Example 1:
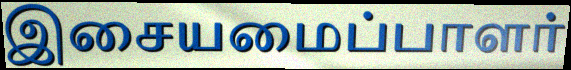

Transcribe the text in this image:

இசையமைப்பாளர்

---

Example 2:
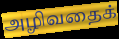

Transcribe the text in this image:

அழிவதைக்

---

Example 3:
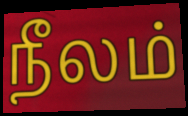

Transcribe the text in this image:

நீலம்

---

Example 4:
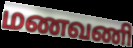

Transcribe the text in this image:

மணவணி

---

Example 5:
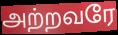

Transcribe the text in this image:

அற்றவரே